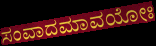
ಸಂವಾದಮಾವಯೋಃ